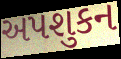
અપશુકન